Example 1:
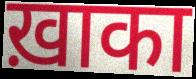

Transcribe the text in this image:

ख़ाका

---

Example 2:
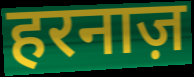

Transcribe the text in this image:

हरनाज़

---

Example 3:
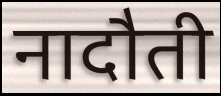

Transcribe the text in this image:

नादौती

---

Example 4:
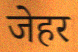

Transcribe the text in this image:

जेहर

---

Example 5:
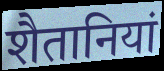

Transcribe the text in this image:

शैतानियां